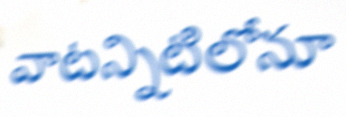
వాటన్నిటిలోనూ